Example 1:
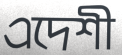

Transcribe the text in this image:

এদেশী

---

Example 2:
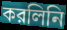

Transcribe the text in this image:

করলিনি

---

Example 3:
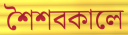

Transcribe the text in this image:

শৈশবকালে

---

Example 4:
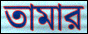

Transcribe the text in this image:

তামার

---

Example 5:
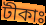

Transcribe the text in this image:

টীকাঃ